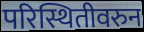
परिस्थितीवरुन